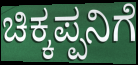
ಚಿಕ್ಕಪ್ಪನಿಗೆ